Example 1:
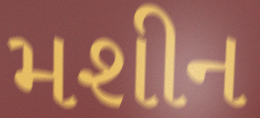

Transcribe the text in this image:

મશીન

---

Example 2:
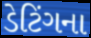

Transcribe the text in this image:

ડેટિંગના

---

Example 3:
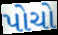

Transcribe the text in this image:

પોચો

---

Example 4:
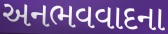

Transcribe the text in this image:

અનભવવાદના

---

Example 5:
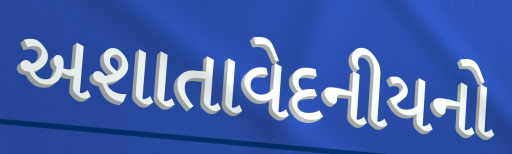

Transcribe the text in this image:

અશાતાવેદનીયનો